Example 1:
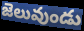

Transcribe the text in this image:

జెలువుండు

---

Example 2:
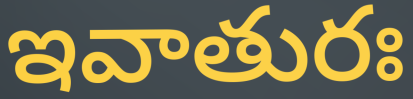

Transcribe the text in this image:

ఇవాతురః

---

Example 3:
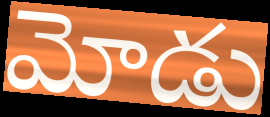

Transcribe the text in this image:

మోడు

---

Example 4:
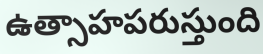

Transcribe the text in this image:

ఉత్సాహపరుస్తుంది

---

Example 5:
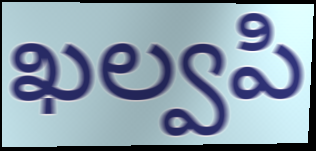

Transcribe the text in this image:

ఖల్వపి